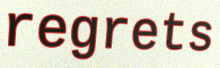
regrets